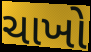
ચાખો